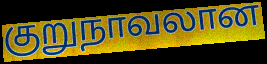
குறுநாவலான